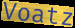
Voatz